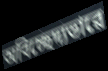
অবিচ্ছেদ্যভাৱে